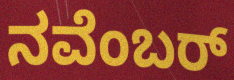
ನವೆಂಬರ್